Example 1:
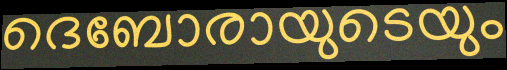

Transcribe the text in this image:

ദെബോരായുടെയും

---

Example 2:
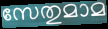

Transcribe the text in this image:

സേതുമാമ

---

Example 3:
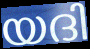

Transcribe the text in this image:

യദി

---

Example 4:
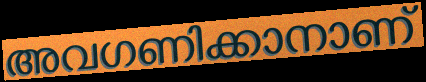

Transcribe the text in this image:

അവഗണിക്കാനാണ്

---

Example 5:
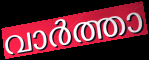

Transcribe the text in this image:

വാർത്താ